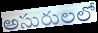
అసురులలో